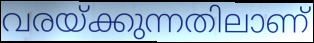
വരയ്ക്കുന്നതിലാണ്